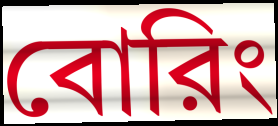
বোরিং